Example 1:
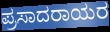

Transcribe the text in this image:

ಪ್ರಸಾದರಾಯರ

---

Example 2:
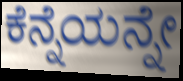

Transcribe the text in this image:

ಕೆನ್ನೆಯನ್ನೇ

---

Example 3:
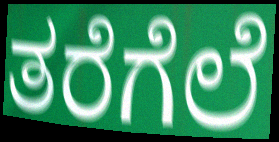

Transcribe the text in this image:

ತರೆಗೆಲೆ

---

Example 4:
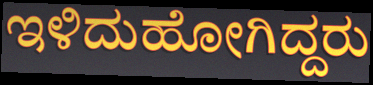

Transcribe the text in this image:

ಇಳಿದುಹೋಗಿದ್ದರು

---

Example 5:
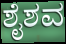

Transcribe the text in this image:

ಶೈಶವ